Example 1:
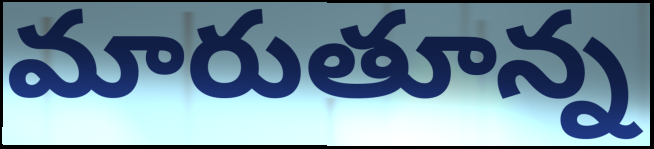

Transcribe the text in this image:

మారుతూన్న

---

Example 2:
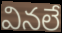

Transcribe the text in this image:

వినలే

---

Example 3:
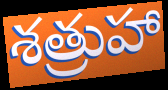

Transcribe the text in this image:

శత్రుహా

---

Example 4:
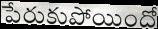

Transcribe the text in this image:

పేరుకుపోయిందో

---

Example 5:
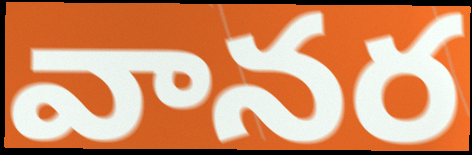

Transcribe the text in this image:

వానర